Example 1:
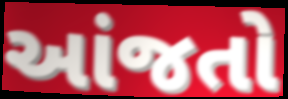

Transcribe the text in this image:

આંજતો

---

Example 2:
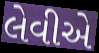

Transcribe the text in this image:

લેવીએ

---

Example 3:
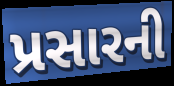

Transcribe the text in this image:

પ્રસારની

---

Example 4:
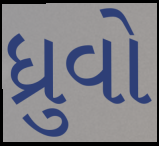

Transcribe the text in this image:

ધ્રુવો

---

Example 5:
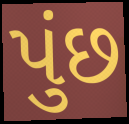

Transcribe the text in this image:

પુંછ